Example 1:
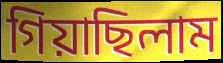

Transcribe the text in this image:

গিয়াছিলাম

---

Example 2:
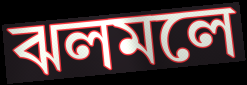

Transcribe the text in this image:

ঝলমলে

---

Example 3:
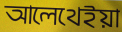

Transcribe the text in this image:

আলেথেইয়া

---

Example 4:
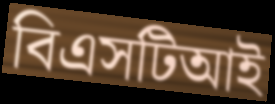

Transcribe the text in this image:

বিএসটিআই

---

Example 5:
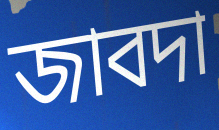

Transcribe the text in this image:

জাবদা